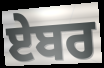
ਏਬਰ